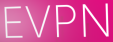
EVPN